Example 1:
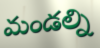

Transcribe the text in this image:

మండల్ని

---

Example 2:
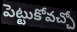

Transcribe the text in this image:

పెట్టుకోవచ్చో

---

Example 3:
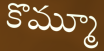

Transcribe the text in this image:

కొమ్మూ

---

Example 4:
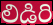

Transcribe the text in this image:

లిడిరి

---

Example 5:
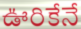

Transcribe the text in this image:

ఊరికేనే